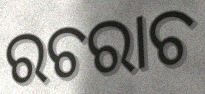
ରଚରାଚ